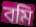
বমি